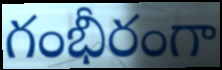
గంభీరంగా